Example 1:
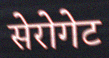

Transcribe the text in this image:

सेरोगेट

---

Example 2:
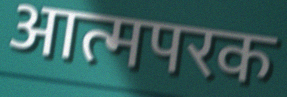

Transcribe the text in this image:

आत्मपरक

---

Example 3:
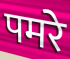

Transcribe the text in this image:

पमरे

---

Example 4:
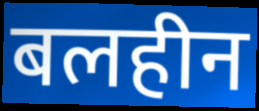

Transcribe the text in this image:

बलहीन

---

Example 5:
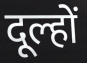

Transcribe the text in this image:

दूल्‍हों